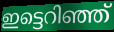
ഇട്ടെറിഞ്ഞ്